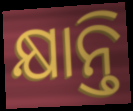
କ୍ଷାନ୍ତି